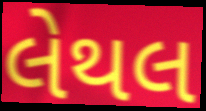
લેથલ